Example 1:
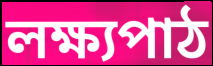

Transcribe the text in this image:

লক্ষ্যপাঠ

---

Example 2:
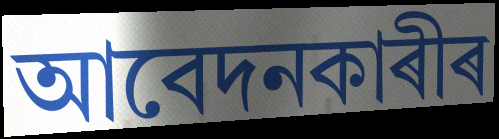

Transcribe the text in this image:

আবেদনকাৰীৰ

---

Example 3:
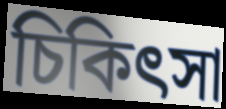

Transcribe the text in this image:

চিকিৎসা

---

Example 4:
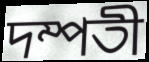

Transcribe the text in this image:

দম্পতী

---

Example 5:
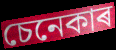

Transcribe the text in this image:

চেনেকাৰ